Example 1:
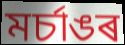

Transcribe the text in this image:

মৰ্চাঙৰ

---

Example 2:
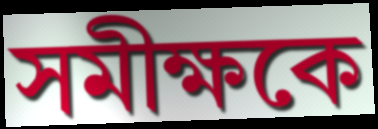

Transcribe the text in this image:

সমীক্ষকে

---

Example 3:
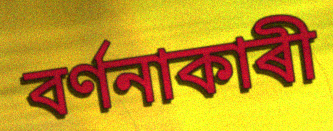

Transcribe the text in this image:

বৰ্ণনাকাৰী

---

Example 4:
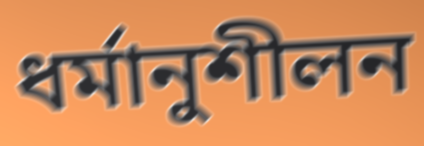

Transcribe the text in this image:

ধৰ্মানুশীলন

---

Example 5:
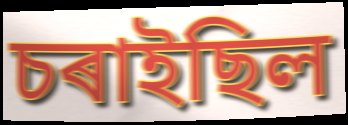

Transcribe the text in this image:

চৰাইছিল